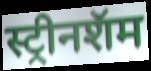
स्ट्रीनशॅम